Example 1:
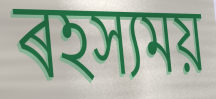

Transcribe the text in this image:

ৰহস্যময়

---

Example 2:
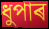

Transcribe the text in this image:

ধুপাৰ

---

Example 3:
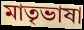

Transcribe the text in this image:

মাতৃভাষা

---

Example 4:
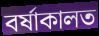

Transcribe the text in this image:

বৰ্ষাকালত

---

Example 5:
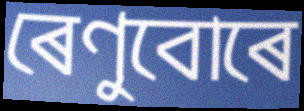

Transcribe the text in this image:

ৰেণুবোৰে